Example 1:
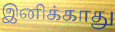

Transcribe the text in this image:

இனிக்காது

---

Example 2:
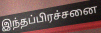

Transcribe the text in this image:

இந்தப்பிரச்சனை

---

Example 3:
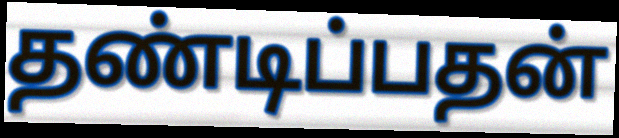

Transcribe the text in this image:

தண்டிப்பதன்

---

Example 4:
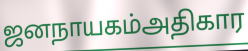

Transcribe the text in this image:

ஜனநாயகம்அதிகார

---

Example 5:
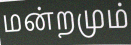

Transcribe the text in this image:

மன்றமும்